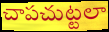
చాపచుట్టలా